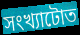
সংখ্যাটোত